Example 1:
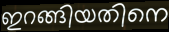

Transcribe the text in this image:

ഇറങ്ങിയതിനെ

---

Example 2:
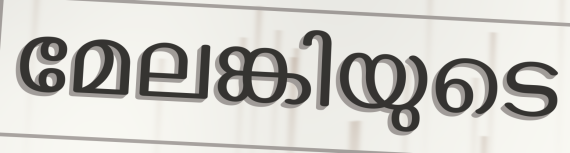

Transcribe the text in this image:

മേലങ്കിയുടെ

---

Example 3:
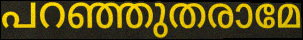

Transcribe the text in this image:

പറഞ്ഞുതരാമേ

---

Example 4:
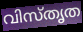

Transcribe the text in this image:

വിസ്തൃത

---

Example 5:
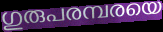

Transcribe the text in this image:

ഗുരുപരമ്പരയെ